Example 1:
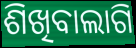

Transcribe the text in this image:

ଶିଖିବାଲାଗି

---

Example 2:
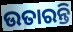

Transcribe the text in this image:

ଉତାରନ୍ତି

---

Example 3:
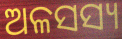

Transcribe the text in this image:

ଅଳସସ୍ୟ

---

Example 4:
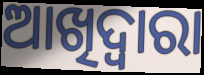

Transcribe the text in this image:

ଆଖିଦ୍ୱାରା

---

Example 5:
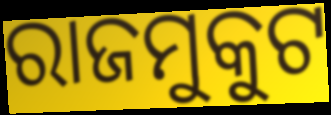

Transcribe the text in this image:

ରାଜମୁକୁଟ